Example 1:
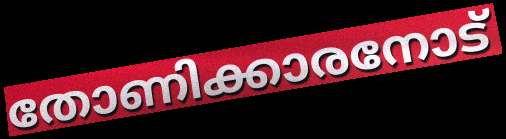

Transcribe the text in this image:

തോണിക്കാരനോട്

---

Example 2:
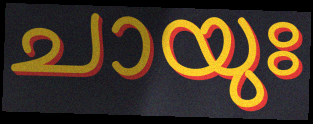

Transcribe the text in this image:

ചായുഃ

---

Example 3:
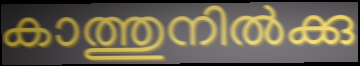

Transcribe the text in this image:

കാത്തുനിൽക്കു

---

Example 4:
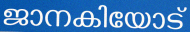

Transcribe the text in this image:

ജാനകിയോട്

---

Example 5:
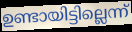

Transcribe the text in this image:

ഉണ്ടായിട്ടില്ലെന്ന്